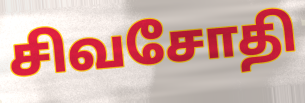
சிவசோதி